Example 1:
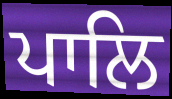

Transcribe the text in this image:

ਪਾਲਿ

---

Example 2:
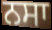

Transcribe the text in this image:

ਨਸਾ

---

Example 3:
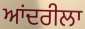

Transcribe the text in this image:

ਆਂਦਰੀਲਾ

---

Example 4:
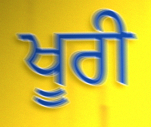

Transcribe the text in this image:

ਖੂਰੀ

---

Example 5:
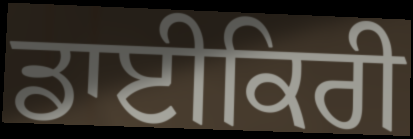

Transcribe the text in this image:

ਡਾਈਕਿਰੀ